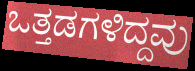
ಒತ್ತಡಗಳಿದ್ದವು